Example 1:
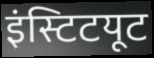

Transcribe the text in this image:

इंस्टिटयूट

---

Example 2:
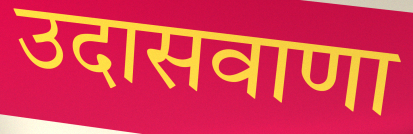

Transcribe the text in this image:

उदासवाणा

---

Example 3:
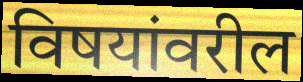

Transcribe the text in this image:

विषयांवरील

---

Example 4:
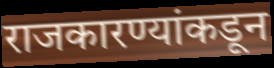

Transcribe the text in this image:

राजकारण्यांकडून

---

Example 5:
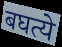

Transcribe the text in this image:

बघत्ये